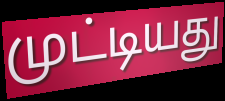
முட்டியது